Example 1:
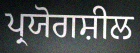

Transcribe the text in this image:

ਪ੍ਰਯੋਗਸ਼ੀਲ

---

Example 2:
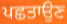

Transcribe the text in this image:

ਪਛਤਾਉਣ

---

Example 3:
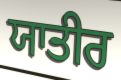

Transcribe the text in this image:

ਯਾਤੀਰ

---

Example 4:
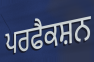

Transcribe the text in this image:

ਪਰਫੈਕਸ਼ਨ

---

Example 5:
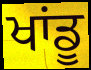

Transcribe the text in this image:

ਖਾਂਡੂ